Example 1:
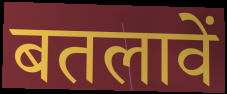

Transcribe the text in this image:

बतलावें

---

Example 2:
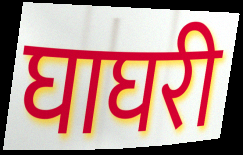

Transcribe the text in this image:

घाघरी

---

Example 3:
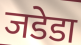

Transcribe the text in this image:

जडेडा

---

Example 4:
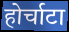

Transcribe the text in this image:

होर्चाटा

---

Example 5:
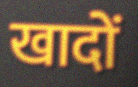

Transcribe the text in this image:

खादों